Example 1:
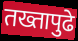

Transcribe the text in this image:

तख्तापुढे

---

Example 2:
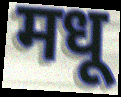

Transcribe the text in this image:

मधू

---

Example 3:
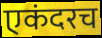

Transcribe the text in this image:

एकंदरच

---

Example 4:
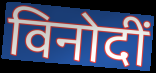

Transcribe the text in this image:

विनोदीं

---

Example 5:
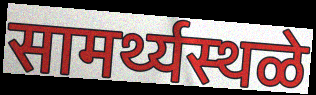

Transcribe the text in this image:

सामर्थ्यस्थळे